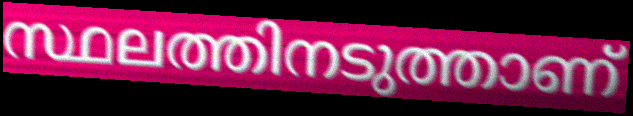
സ്ഥലത്തിനടുത്താണ്